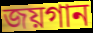
জয়গান